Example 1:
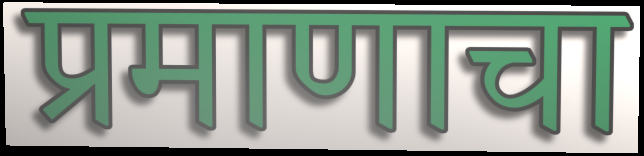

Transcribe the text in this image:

प्रमाणाचा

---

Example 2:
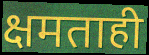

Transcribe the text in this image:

क्षमताही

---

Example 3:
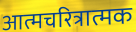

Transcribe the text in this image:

आत्मचरित्रात्मक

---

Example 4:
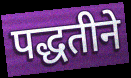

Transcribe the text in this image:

पद्धतीने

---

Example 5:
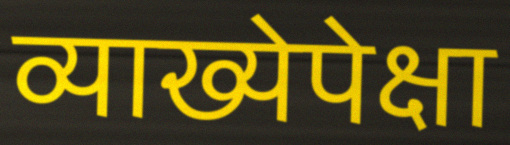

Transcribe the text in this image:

व्याख्येपेक्षा